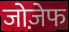
जोज़ेफ